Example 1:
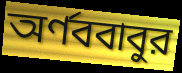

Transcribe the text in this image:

অর্ণববাবুর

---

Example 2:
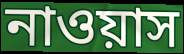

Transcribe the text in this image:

নাওয়াস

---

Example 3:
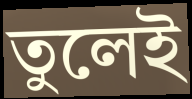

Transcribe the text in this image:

তুলেই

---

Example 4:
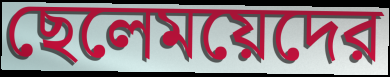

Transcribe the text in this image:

ছেলেময়েদের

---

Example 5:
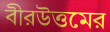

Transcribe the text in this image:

বীরউত্তমের